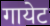
गायेट